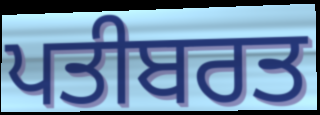
ਪਤੀਬਰਤ